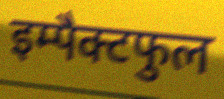
इम्पैक्टफुल